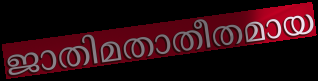
ജാതിമതാതീതമായ